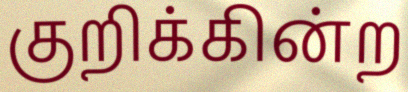
குறிக்கின்ற